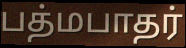
பத்மபாதர்